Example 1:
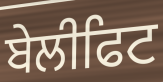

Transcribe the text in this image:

ਬੇਲੀਫਿਟ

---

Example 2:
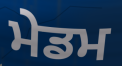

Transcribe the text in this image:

ਮੇਡਮ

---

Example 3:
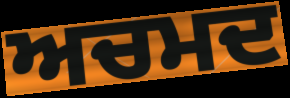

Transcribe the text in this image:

ਅਚਮਦ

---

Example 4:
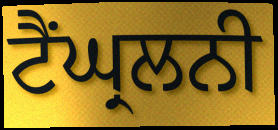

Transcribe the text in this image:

ਟੈਂਘ੍ਰਲਨੀ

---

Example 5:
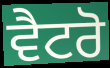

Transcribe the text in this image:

ਵੈਟਰੋ